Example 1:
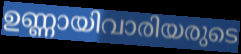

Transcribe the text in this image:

ഉണ്ണായിവാരിയരുടെ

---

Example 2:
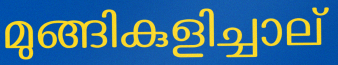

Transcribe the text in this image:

മുങ്ങികുളിച്ചാല്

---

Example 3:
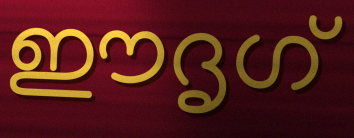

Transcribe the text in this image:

ഈദൃഗ്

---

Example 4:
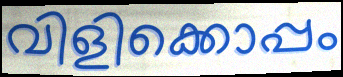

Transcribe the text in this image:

വിളിക്കൊപ്പം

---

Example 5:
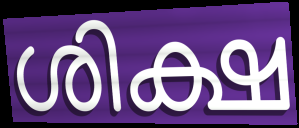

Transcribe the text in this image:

ശിക്ഷ